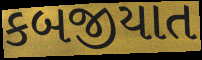
કબજીયાત